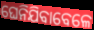
ଘେନିଯିବାବେଳେ